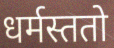
धर्मस्ततो